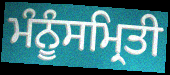
ਮੰਨੂੰਸਮ੍ਰਿਤੀ